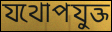
যথোপযুক্ত